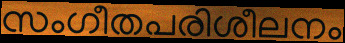
സംഗീതപരിശീലനം